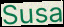
Susa